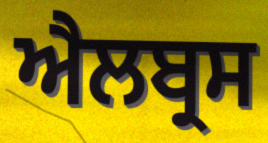
ਐਲਬ੍ਰਸ